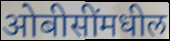
ओबीसींमधील